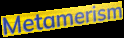
Metamerism